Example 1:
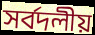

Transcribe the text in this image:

সৰ্বদলীয়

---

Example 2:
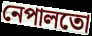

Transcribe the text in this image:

নেপালতো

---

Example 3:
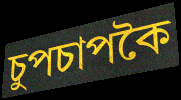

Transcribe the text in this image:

চুপচাপকৈ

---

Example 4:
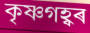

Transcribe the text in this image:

কৃষ্ণগহ্বৰ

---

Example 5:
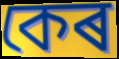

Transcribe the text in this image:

কেৰ